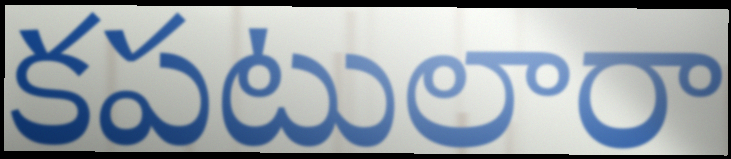
కపటులారా